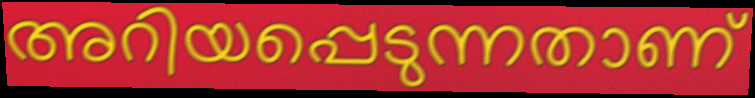
അറിയപ്പെടുന്നതാണ്